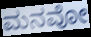
ಮನವೋ